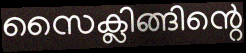
സൈക്ലിങ്ങിന്റെ